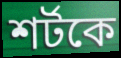
শর্টকে